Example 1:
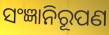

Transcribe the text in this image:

ସଂଜ୍ଞାନିରୂପଣ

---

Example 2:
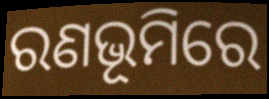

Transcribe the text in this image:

ରଣଭୂମିରେ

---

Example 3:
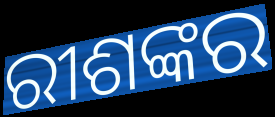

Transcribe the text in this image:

ରୀଶଙ୍କର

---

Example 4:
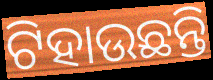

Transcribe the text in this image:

ଟିହାଉଛନ୍ତି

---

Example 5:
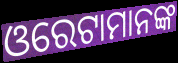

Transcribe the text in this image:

ଓରେଟାମାନଙ୍କ